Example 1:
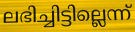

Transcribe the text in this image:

ലഭിച്ചിട്ടില്ലെന്ന്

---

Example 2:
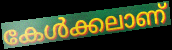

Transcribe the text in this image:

കേൾക്കലാണ്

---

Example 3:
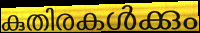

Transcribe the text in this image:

കുതിരകൾക്കും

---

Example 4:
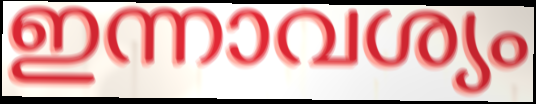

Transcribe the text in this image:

ഇന്നാവശ്യം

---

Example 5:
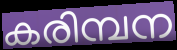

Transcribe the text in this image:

കരിമ്പന